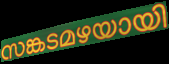
സങ്കടമഴയായി